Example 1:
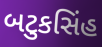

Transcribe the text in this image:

બટુકસિંહ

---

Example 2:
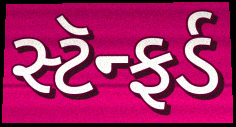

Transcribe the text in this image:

સ્ટૅન્ફર્ડ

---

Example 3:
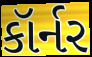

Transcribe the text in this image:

કૉર્નર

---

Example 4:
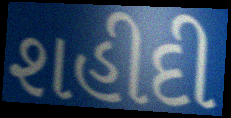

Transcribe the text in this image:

શહીદી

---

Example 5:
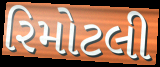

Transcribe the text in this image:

રિમોટલી